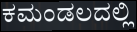
ಕಮಂಡಲದಲ್ಲಿ